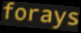
forays